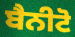
ਬੈਨੀਟੋ